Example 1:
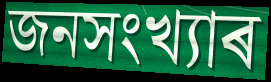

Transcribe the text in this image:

জনসংখ্যাৰ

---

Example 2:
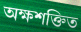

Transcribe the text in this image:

অক্ষশক্তিত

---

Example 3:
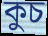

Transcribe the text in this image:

কুচ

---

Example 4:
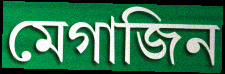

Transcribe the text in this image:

মেগাজিন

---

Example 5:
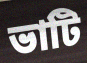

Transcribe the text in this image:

ভাটি